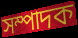
সম্পাদক